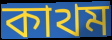
কাথম